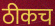
ठीकच